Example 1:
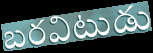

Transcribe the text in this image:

బరవిటుడు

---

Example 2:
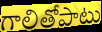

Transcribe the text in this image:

గాలితోపాటు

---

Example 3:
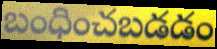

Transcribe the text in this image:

బంధించబడడం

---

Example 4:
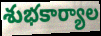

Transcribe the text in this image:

శుభకార్యాల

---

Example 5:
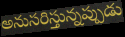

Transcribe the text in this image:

అనుసరిస్తున్నప్పుడు